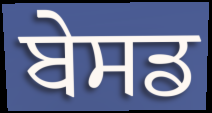
ਬੇਸਡ